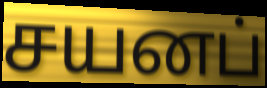
சயனப்